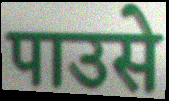
पाउसे